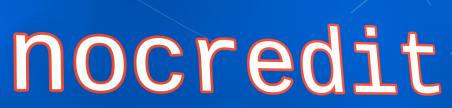
nocredit